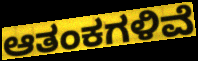
ಆತಂಕಗಳಿವೆ